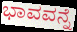
ಭಾವವನ್ನೆ